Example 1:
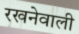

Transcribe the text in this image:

रखनेवाली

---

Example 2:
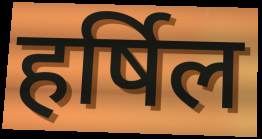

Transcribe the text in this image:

हर्षिल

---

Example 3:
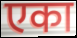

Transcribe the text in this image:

एका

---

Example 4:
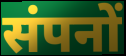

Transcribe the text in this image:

संपनों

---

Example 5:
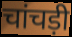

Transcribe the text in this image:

चांचड़ी